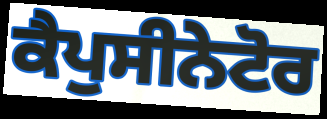
ਕੈਪੁਸੀਨੇਟੋਰ